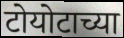
टोयोटाच्या